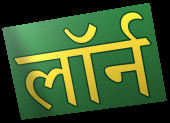
लॉर्न